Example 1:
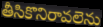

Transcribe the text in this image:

తీసికొనిరావలెను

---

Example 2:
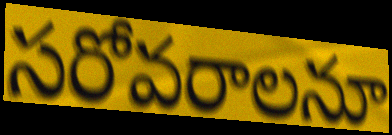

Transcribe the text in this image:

సరోవరాలనూ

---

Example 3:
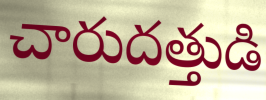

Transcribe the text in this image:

చారుదత్తుడి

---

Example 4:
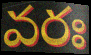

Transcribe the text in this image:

వరః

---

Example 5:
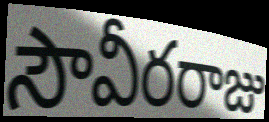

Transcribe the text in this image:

సౌవీరరాజు